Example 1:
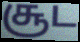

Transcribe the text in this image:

சூட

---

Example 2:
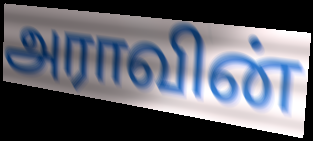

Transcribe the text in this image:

அராவின்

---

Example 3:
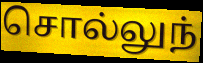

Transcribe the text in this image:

சொல்லுந்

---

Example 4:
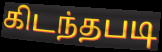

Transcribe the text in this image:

கிடந்தபடி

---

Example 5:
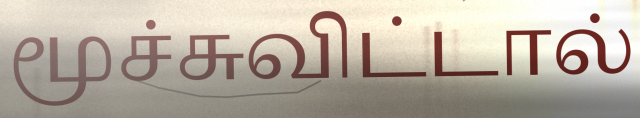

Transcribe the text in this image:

மூச்சுவிட்டால்